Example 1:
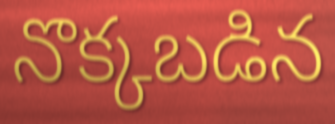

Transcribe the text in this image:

నొక్కబడిన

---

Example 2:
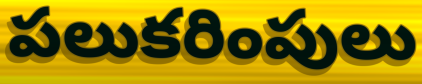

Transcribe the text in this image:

పలుకరింపులు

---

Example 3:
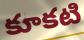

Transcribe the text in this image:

కూకటి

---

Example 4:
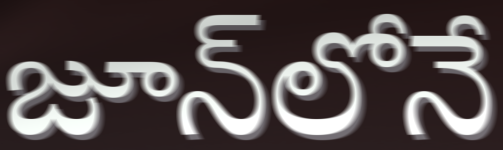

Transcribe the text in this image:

జూన్‌లోనే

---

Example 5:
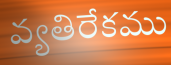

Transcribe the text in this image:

వ్యతిరేకము